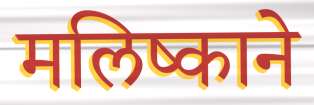
मलिष्काने